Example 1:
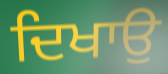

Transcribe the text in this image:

ਦਿਖਾਉ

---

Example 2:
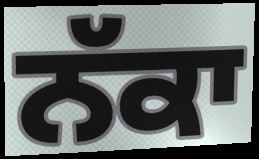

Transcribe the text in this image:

ਨੱਕਾ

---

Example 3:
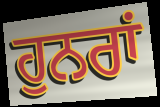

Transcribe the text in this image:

ਹੁਨਰਾਂ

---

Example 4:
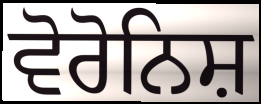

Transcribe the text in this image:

ਵੋਰੋਨਿਸ਼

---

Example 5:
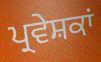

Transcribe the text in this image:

ਪ੍ਰਵੇਸ਼ਕਾਂ